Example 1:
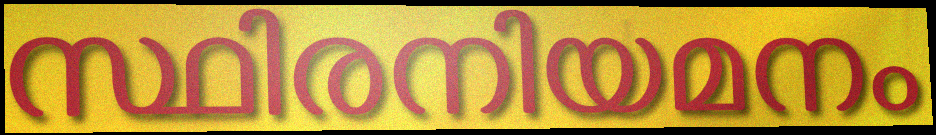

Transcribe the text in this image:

സ്ഥിരനിയമനം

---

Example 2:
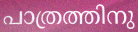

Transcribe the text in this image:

പാത്രത്തിനു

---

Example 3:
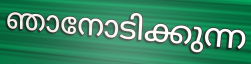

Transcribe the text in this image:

ഞാനോടിക്കുന്ന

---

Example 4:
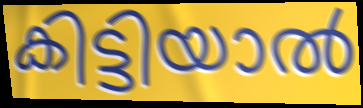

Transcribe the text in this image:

കിട്ടിയാൽ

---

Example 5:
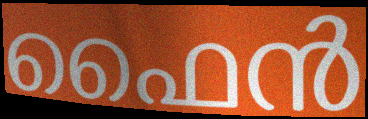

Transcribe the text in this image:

ഫൈൻ